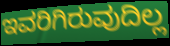
ಇವರಿಗಿರುವುದಿಲ್ಲ